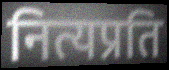
नित्यप्रति